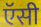
ऍसी